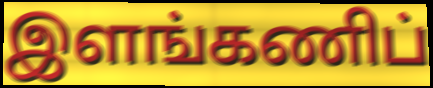
இளங்கணிப்